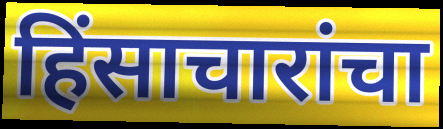
हिंसाचारांचा